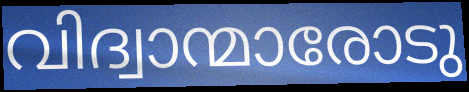
വിദ്വാന്മാരോടു